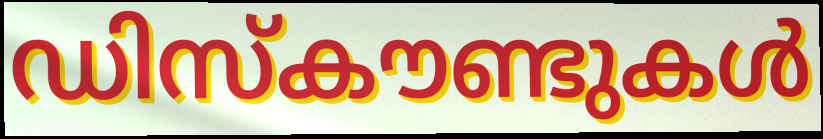
ഡിസ്കൗണ്ടുകൾ